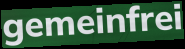
gemeinfrei